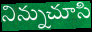
నిన్నుచూసి